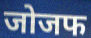
जोजफ